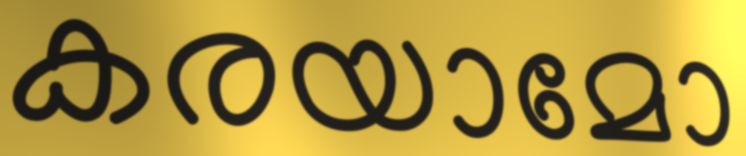
കരയാമോ